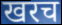
खरच